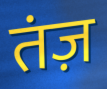
तंज़